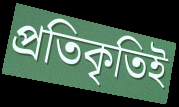
প্রতিকৃতিই